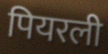
पियरली